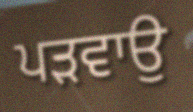
ਪੜਵਾਉ